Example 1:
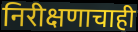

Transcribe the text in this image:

निरीक्षणाचाही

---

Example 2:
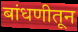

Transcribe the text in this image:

बांधणीतून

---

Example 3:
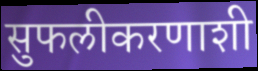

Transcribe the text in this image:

सुफलीकरणाशी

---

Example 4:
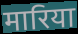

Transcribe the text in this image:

मारिया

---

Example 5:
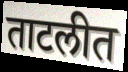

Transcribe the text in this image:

ताटलीत